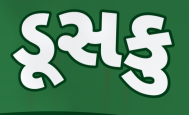
ડૂસકુ